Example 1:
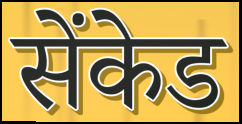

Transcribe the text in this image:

सेंकेड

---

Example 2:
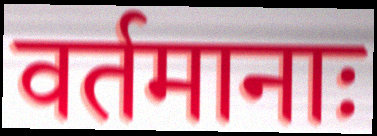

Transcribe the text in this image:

वर्तमानाः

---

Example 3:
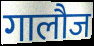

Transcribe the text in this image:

गालौज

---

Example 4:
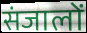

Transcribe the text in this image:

संजालों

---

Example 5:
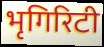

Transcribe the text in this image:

भृगिरिटी